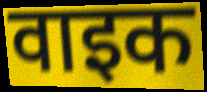
वाइक